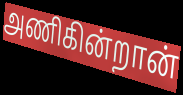
அணிகின்றான்